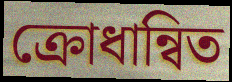
ক্ৰোধান্বিত